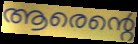
ആരെന്റെ